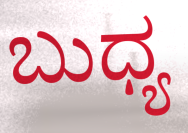
ಬುಧ್ಯ